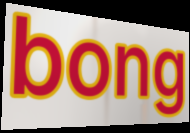
bong